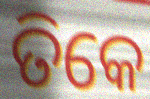
ତିକେ